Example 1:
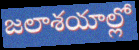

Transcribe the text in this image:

జలాశయాల్లో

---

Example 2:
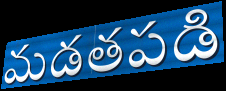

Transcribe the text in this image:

మడతపడి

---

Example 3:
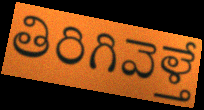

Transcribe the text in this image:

తిరిగివెళ్తే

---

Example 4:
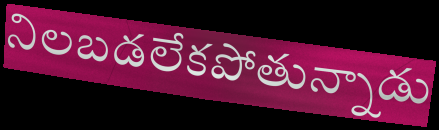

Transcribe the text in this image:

నిలబడలేకపోతున్నాడు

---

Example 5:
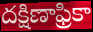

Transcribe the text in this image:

దక్షిణాఫ్రికా